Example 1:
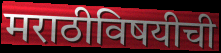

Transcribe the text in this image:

मराठीविषयीची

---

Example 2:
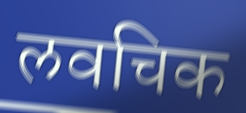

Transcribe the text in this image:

लवचिक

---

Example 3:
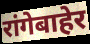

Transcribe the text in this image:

रांगेबाहेर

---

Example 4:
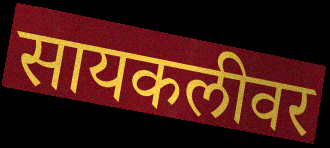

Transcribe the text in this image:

सायकलीवर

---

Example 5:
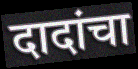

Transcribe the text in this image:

दादांचा